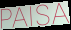
PAISA